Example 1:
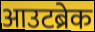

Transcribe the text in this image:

आउटब्रेक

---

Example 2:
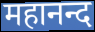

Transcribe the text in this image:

महानन्द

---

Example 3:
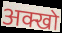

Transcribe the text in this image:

अक्खो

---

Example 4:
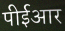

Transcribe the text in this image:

पीईआर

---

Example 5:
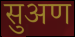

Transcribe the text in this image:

सुअण